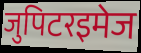
जुपिटरइमेज